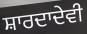
ਸ਼ਾਰਦਾਦੇਵੀ